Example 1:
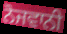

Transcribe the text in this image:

ਨੋਜਵਾਨੀ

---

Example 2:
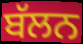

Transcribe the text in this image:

ਬੱਲਨ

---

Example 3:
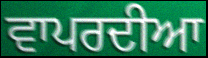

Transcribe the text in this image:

ਵਾਪਰਦੀਆ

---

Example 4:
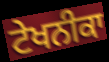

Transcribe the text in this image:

ਟੇਖਨੀਕਾ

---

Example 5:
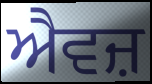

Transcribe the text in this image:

ਐਵਜ਼